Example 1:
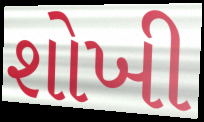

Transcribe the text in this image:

શોખી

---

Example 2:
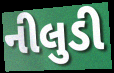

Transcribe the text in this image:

નીલુડી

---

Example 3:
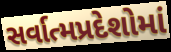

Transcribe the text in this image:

સર્વાત્મપ્રદેશોમાં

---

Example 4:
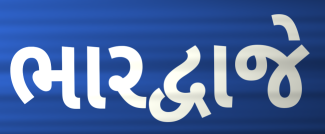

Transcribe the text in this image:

ભારદ્વાજે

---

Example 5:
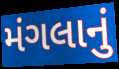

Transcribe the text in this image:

મંગલાનું